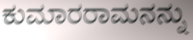
ಕುಮಾರರಾಮನನ್ನು